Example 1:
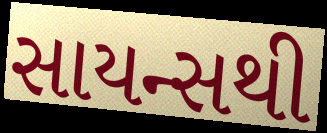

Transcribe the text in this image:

સાયન્સથી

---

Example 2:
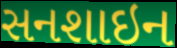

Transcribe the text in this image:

સનશાઇન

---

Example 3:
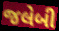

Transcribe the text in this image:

જલેબી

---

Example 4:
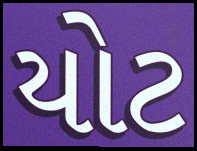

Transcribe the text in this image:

યોટ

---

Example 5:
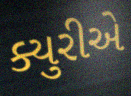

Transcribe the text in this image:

ક્યુરીએ